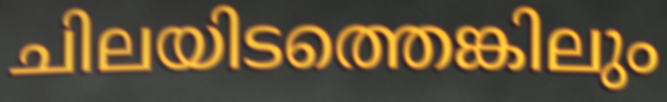
ചിലയിടത്തെങ്കിലും